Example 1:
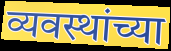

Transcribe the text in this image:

व्यवस्थांच्या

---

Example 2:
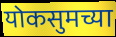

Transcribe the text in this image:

योकसुमच्या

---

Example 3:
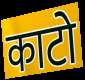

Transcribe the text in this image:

काटो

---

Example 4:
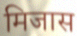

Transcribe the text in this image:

मिजास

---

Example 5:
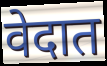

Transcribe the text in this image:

वेदात